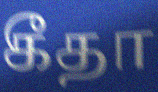
கீதா